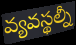
వ్యవస్థల్నీ